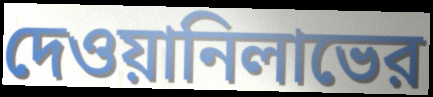
দেওয়ানিলাভের